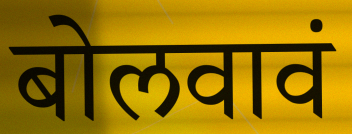
बोलवावं